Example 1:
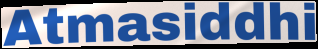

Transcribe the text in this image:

Atmasiddhi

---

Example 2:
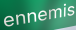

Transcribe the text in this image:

ennemis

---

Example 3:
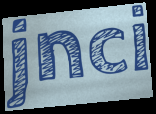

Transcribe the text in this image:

jnci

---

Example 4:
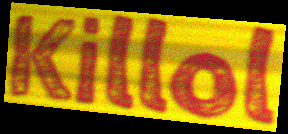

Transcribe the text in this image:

Killol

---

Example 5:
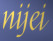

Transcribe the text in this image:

nijei